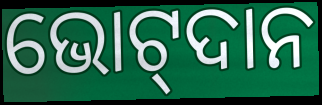
ଭୋଟ୍‌ଦାନ